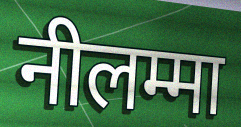
नीलम्मा